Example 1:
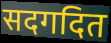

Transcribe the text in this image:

सदगदित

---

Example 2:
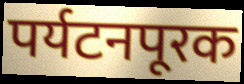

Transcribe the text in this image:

पर्यटनपूरक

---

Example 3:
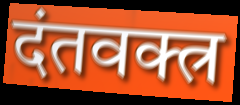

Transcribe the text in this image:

दंतवक्त्र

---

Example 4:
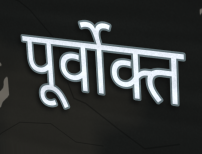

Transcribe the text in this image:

पूर्वोक्त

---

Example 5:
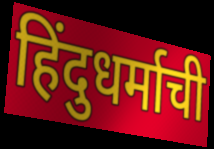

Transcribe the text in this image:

हिंदुधर्माची